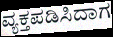
ವ್ಯಕ್ತಪಡಿಸಿದಾಗ